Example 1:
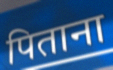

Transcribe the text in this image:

पिताना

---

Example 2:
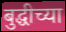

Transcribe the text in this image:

बुद्धीच्या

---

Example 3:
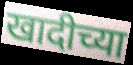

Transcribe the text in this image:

खादीच्या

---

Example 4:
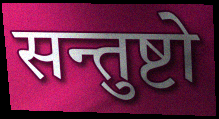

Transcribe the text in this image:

सन्तुष्टो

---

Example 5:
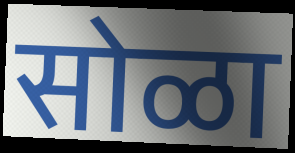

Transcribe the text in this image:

सोळा